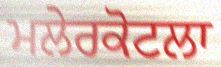
ਮਲੇਰਕੋਟਲਾ